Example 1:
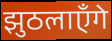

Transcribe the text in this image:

झुठलाएँगे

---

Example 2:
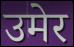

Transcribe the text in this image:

उमेर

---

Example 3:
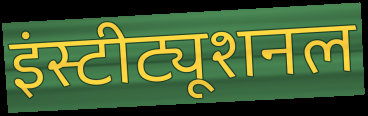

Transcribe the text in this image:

इंस्टीट्यूशनल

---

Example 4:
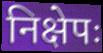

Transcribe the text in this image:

निक्षेपः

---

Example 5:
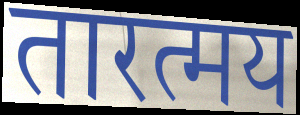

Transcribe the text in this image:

तारत्मय